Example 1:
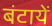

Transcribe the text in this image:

बंटायें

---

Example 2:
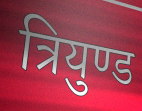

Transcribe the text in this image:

त्रियुण्ड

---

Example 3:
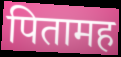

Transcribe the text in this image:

पितामह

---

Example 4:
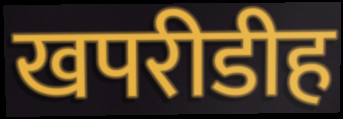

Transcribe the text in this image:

खपरीडीह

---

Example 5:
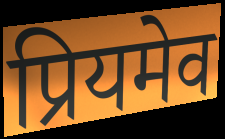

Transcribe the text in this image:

प्रियमेव